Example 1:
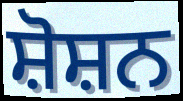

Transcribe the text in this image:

ਸ਼ੋਸ਼ਨ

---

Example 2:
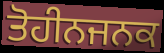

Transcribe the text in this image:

ਤੋਹੀਨਜਨਕ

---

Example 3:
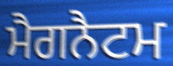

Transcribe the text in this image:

ਮੈਗਨੈਟਮ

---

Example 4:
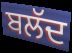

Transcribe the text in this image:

ਬਲੱਦ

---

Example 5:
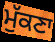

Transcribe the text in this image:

ਮੁੱਕਣਾ